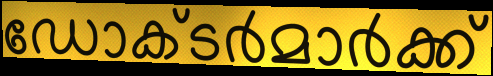
ഡോക്ടർമാർക്ക്